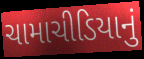
ચામાચીડિયાનું